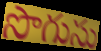
సొగుసు